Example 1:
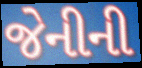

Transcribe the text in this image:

જેનીની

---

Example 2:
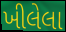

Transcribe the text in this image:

ખીલેલા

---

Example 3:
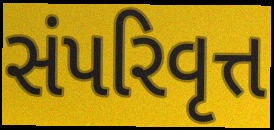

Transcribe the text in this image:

સંપરિવૃત્ત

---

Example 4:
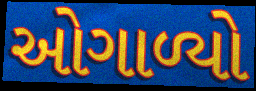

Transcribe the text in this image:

ઓગાળ્યો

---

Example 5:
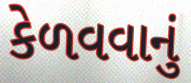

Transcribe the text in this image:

કેળવવાનું